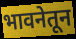
भावनेतून